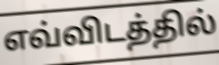
எவ்விடத்தில்